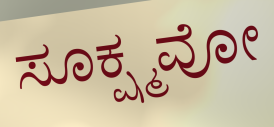
ಸೂಕ್ಷ್ಮವೋ